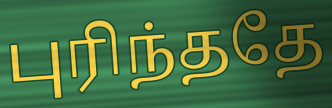
புரிந்ததே